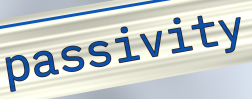
passivity